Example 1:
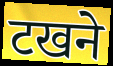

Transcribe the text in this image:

टखने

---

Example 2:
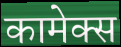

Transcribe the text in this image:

कामेक्स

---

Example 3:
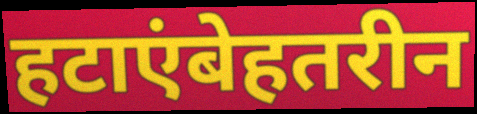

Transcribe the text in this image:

हटाएंबेहतरीन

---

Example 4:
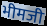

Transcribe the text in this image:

भीमजी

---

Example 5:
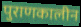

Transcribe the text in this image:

पुराणकालीन